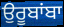
ਉਰੂਬਾਂਬਾ